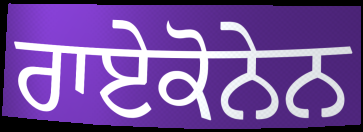
ਰਾਏਕੋਨੇਨ